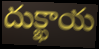
దుక్ఖాయ